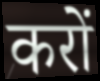
करों